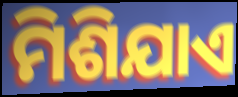
ମିଶିଯାଏ